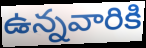
ఉన్నవారికి